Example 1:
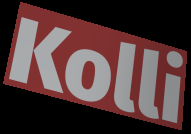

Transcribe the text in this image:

Kolli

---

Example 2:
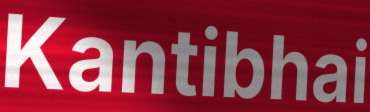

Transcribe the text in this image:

Kantibhai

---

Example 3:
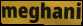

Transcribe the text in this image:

meghani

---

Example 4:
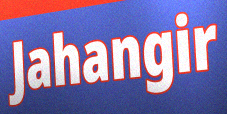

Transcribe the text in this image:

Jahangir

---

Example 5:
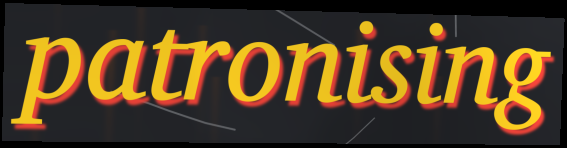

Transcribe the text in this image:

patronising